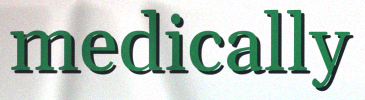
medically